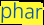
phar